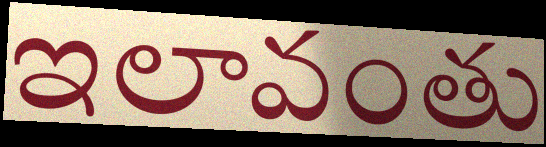
ఇలావంతు